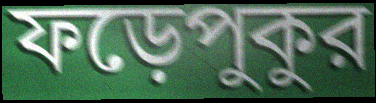
ফড়েপুকুর